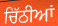
ਚਿੱਠੀਆਂ